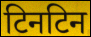
टिनटिन